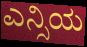
ಎನ್ಸಿಯ